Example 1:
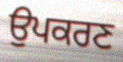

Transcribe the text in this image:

ਉਪਕਰਣ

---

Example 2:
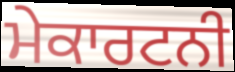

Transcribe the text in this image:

ਮੇਕਾਰਟਨੀ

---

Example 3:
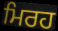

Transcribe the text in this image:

ਮਿਰਹ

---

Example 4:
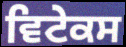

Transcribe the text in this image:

ਵਿਟੇਕਸ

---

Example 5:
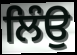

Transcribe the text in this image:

ਲਿੰਉ